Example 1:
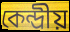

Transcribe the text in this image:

কেন্দ্রীয়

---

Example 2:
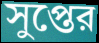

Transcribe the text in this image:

সুপ্তের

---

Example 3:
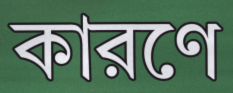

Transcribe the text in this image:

কারণে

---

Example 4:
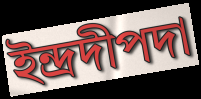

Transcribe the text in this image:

ইন্দ্রদীপদা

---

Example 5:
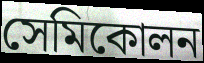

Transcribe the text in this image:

সেমিকোলন